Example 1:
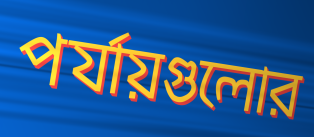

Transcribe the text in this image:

পর্যায়গুলোর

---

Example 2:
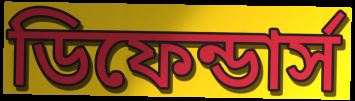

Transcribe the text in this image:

ডিফেন্ডার্স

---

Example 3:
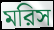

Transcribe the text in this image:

মরিস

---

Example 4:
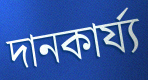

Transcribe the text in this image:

দানকার্য্য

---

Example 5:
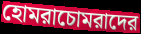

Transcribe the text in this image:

হোমরাচোমরাদের